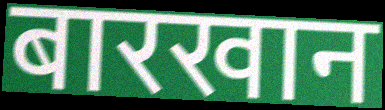
बारखान